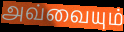
அவ்வையும்